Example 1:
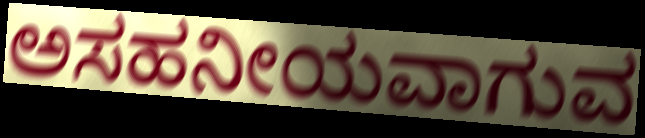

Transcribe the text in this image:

ಅಸಹನೀಯವಾಗುವ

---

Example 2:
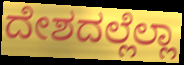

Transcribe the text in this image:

ದೇಶದಲ್ಲೆಲ್ಲಾ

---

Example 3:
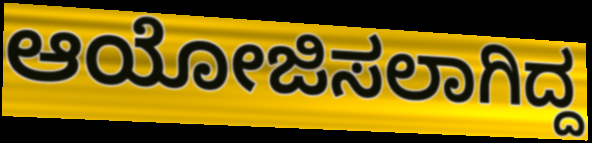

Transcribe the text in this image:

ಆಯೋಜಿಸಲಾಗಿದ್ದ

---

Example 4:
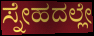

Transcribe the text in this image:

ಸ್ನೇಹದಲ್ಲೇ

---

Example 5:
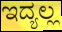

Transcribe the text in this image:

ಇದ್ಯಲ್ಲ